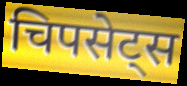
चिपसेट्स